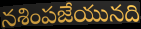
నశింపజేయునది